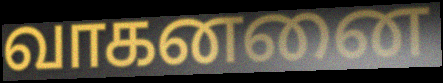
வாகனனை